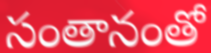
సంతానంతో